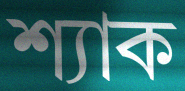
শ্যাক